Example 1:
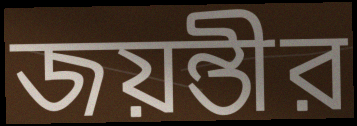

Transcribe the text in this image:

জয়ন্তীর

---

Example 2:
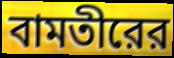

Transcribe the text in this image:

বামতীরের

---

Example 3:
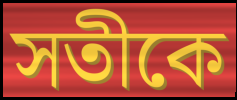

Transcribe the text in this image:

সতীকে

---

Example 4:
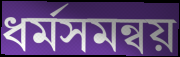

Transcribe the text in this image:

ধর্মসমন্বয়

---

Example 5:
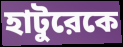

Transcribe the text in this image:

হাটুরেকে